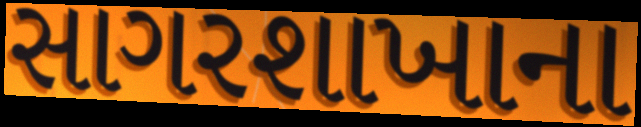
સાગરશાખાના